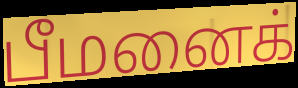
பீமனைக்